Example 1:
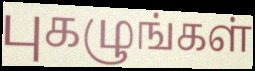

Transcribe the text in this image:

புகழுங்கள்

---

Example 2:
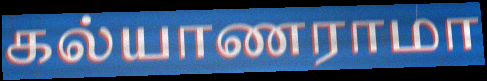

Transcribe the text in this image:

கல்யாணராமா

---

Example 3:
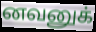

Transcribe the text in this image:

னவனுக்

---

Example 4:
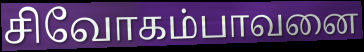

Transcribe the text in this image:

சிவோகம்பாவனை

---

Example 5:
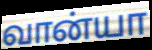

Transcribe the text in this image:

வான்யா